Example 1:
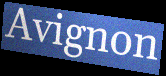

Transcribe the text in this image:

Avignon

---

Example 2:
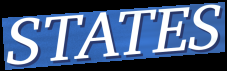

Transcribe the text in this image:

STATES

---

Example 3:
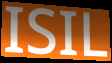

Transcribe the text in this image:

ISIL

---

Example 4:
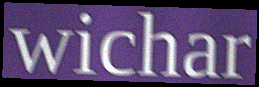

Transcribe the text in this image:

wichar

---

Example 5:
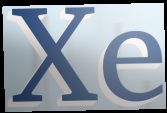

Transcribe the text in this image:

Xe